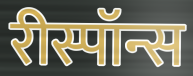
रीस्पॉन्स